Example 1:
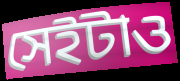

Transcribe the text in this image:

সেইটাও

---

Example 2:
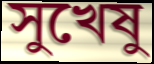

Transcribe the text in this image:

সুখেষু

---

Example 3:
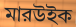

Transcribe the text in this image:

মারউইক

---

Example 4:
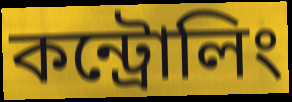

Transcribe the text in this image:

কন্ট্রোলিং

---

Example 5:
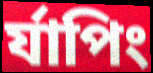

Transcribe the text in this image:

র্যাপিং